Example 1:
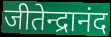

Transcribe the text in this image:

जीतेन्द्रानंद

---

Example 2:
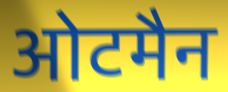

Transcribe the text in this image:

ओटमैन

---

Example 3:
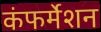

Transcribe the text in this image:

कंफर्मेशन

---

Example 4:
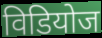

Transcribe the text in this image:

विडियोज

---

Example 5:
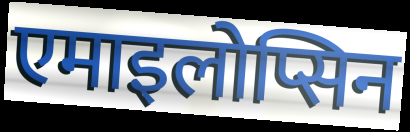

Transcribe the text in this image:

एमाइलोप्सिन